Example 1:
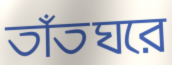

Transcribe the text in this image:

তাঁতঘরে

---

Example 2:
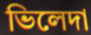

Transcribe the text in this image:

ভিলেদা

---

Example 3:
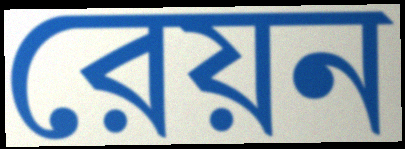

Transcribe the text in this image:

রেয়ন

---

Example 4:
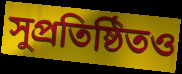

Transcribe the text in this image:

সুপ্রতিষ্ঠিতও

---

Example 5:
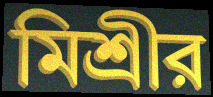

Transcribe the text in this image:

মিশ্রীর